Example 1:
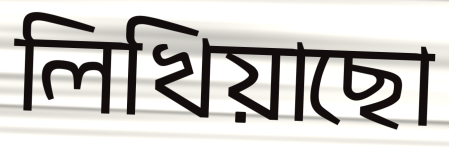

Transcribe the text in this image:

লিখিয়াছো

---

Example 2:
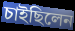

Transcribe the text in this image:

চাইছিলেন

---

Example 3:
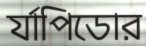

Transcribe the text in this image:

র্যাপিডোর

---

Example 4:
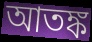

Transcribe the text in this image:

আতঙ্ক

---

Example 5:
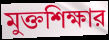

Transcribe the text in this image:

মুক্তশিক্ষার